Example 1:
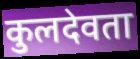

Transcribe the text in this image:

कुलदेवता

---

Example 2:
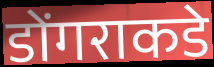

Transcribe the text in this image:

डोंगराकडे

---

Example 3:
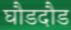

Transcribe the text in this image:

घौडदौड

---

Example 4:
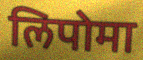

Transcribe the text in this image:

लिपोमा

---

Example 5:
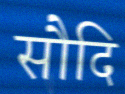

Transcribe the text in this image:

सौदि